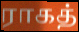
ராகத்